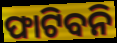
ଫାଟିବନି